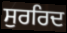
ਸੁਰਰਿਦ